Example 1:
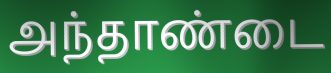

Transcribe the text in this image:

அந்தாண்டை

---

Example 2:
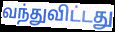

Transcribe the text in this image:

வந்துவிட்டது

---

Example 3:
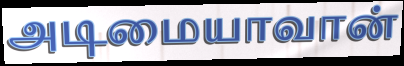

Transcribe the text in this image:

அடிமையாவான்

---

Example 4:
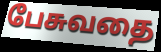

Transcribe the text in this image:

பேசுவதை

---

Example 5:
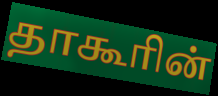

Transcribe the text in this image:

தாகூரின்